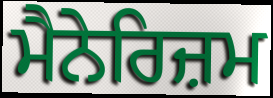
ਮੈਨੇਰਿਜ਼ਮ